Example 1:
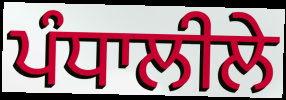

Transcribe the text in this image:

ਪੰਧਾਲੀਲੇ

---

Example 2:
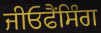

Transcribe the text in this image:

ਜੀਓਫੈਂਸਿੰਗ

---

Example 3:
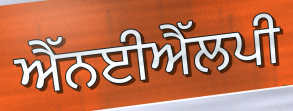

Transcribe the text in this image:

ਐੱਨਈਐੱਲਪੀ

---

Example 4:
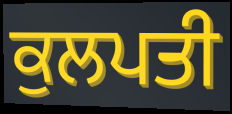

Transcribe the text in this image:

ਕੁਲਪਤੀ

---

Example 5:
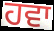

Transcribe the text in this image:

ਹਵਾ